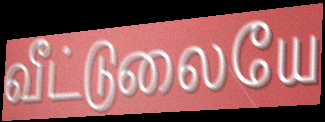
வீட்டுலையே